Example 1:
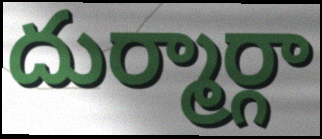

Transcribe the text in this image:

దుర్మార్గా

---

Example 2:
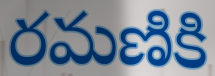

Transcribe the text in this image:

రమణికి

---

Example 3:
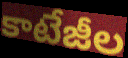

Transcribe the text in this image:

కాటేజీల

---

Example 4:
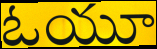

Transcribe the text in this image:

ఓయూ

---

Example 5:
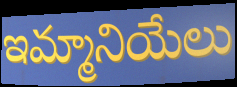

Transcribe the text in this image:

ఇమ్మానియేలు